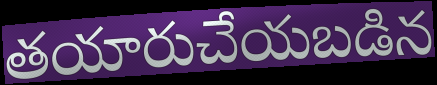
తయారుచేయబడిన